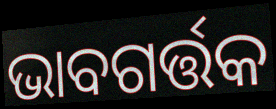
ଭାବଗର୍ତ୍ତକ